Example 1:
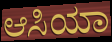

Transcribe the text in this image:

ಆಸಿಯಾ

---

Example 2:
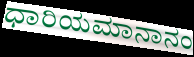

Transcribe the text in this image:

ಧಾರಿಯಮಾನಾನಂ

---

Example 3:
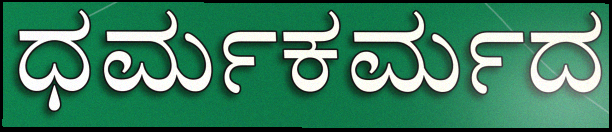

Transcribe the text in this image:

ಧರ್ಮಕರ್ಮದ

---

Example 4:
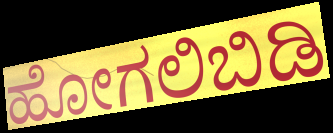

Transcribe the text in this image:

ಹೋಗಲಿಬಿಡಿ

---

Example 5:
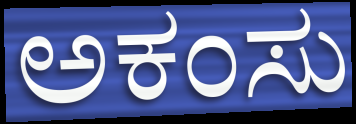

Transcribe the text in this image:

ಅಕಂಸು